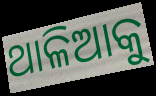
ଥାଳିଆକୁ